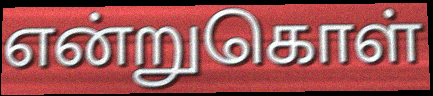
என்றுகொள்